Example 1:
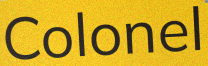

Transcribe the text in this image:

Colonel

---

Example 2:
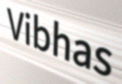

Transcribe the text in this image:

Vibhas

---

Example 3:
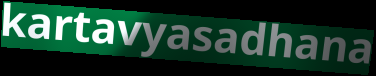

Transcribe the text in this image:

kartavyasadhana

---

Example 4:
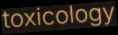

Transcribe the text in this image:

toxicology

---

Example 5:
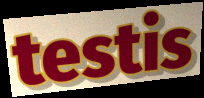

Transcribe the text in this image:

testis